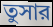
তুসার